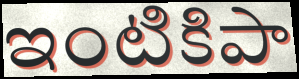
ఇంటికిపా